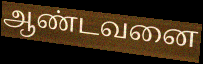
ஆண்டவனை